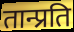
तान्प्रति